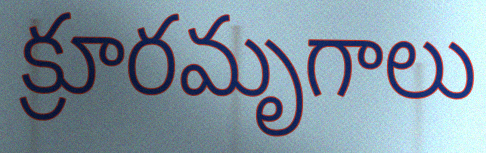
క్రూరమృగాలు